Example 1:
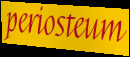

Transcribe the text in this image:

periosteum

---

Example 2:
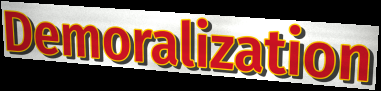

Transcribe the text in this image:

Demoralization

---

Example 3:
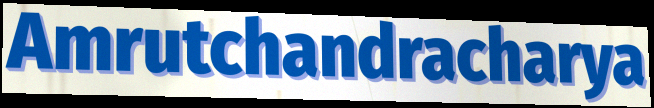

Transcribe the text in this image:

Amrutchandracharya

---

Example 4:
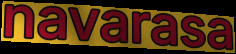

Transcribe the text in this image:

navarasa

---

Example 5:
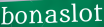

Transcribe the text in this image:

bonaslot